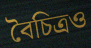
বৈচিত্রও